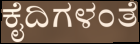
ಕೈದಿಗಳಂತೆ